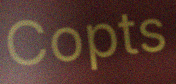
Copts